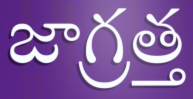
జాగ్రత్త